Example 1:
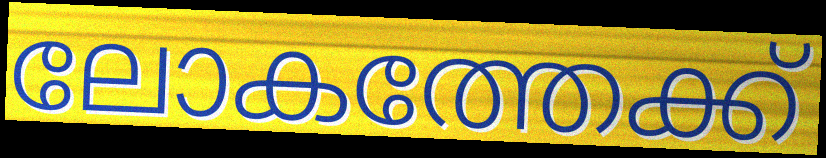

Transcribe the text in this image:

ലോകത്തേക്ക്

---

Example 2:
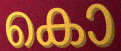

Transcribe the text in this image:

കൊ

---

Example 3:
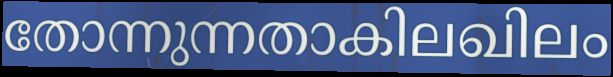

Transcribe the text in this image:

തോന്നുന്നതാകിലഖിലം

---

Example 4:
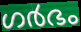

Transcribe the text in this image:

ഗർഭം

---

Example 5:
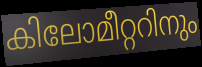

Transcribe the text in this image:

കിലോമീറ്ററിനും